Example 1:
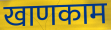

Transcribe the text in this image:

खाणकाम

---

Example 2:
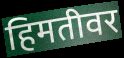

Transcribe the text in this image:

हिमतीवर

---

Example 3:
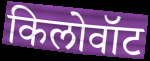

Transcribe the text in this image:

किलोवॉट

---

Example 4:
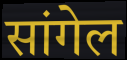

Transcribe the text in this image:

सांगेल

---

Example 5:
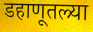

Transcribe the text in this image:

डहाणूतल्या